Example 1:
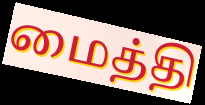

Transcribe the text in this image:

மைத்தி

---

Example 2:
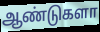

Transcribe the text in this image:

ஆண்டுகளா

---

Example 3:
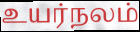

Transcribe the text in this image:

உயர்நலம்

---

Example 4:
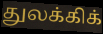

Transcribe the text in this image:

துலக்கிக்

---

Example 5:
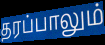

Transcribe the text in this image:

தரப்பாலும்